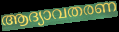
ആദ്യാവതരണ